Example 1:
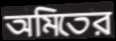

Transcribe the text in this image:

অমিতের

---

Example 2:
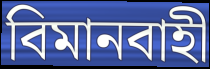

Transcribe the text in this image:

বিমানবাহী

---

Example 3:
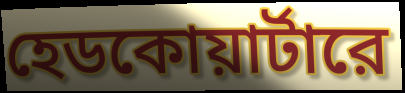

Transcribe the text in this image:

হেডকোয়ার্টারে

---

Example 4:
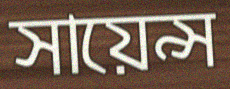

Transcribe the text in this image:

সায়েন্স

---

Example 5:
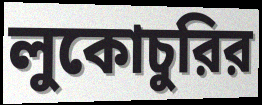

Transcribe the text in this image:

লুকোচুরির